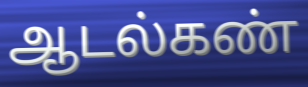
ஆடல்கண்